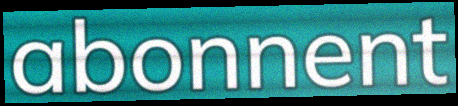
abonnent